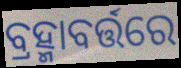
ବ୍ରହ୍ମାବର୍ତ୍ତରେ